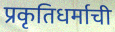
प्रकृतिधर्माची